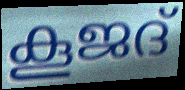
കൂജദ്